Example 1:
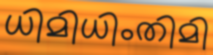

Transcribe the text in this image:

ധിമിധിംതിമി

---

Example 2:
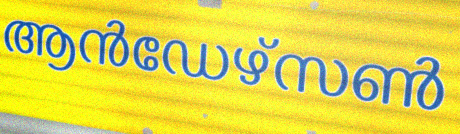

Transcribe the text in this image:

ആൻഡേഴ്സൺ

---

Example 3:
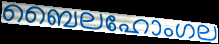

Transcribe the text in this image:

ബൈലഹോംഗല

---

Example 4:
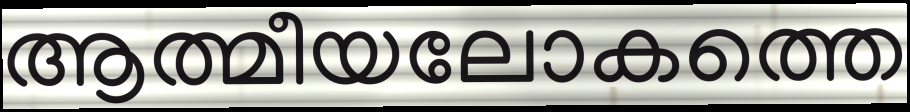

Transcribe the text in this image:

ആത്മീയലോകത്തെ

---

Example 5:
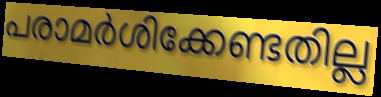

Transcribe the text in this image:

പരാമർശിക്കേണ്ടതില്ല